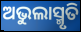
ଅଭୁଲାସ୍ମୃତି